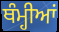
ਥੰਮ੍ਹੀਆਂ